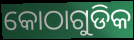
କୋଠାଗୁଡିକ